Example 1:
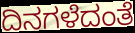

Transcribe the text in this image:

ದಿನಗಳೆದಂತೆ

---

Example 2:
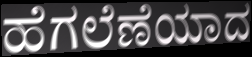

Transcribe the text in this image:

ಹೆಗಲೆಣೆಯಾದ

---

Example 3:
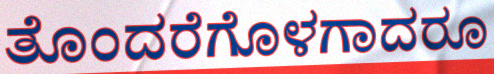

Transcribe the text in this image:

ತೊಂದರೆಗೊಳಗಾದರೂ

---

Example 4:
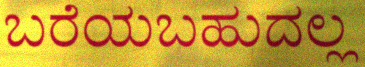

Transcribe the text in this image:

ಬರೆಯಬಹುದಲ್ಲ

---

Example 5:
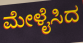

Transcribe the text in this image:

ಮೇಳೈಸಿದ